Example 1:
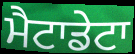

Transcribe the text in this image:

ਮੈਟਾਡੇਟਾ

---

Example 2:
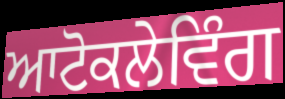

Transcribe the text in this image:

ਆਟੋਕਲੇਵਿੰਗ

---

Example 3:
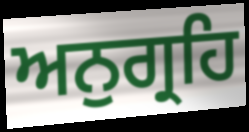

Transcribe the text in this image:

ਅਨੁਗ੍ਰਹਿ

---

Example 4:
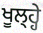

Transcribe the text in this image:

ਖੂਲ੍ਹ੍ਹੇ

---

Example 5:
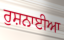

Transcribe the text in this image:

ਰੁਸ਼ਨਾਈਆ